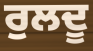
ਰੁਲਦੂ